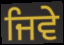
ਜਿਵੇ